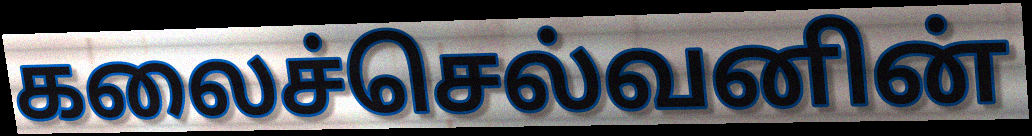
கலைச்செல்வனின்